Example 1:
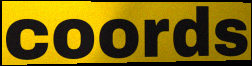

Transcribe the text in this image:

coords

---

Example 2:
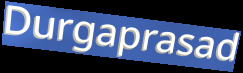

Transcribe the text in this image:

Durgaprasad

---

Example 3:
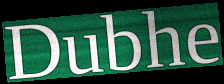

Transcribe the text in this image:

Dubhe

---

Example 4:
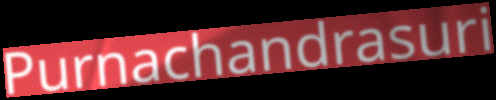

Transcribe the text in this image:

Purnachandrasuri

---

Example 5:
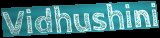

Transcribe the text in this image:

Vidhushini